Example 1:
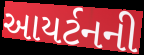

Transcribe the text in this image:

આયર્ટનની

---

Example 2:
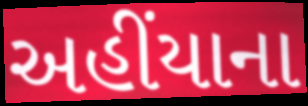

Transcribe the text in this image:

અહીંયાના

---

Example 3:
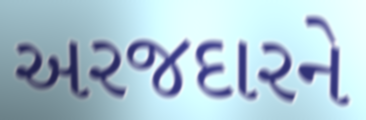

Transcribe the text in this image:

અરજદારને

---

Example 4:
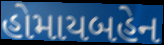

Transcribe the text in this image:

હોમાયબહેન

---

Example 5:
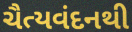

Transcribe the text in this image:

ચૈત્યવંદનથી